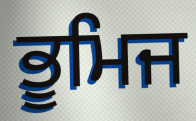
ਭੂਮਿਜ